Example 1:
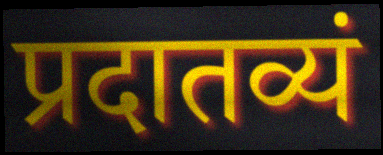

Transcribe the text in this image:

प्रदातव्यं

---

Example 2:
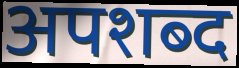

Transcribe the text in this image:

अपशब्‍द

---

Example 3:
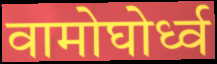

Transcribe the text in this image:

वामोघोर्ध्व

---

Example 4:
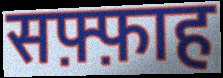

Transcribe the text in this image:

सफ़्फ़ाह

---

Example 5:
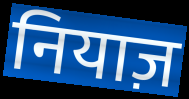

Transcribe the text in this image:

नियाज़